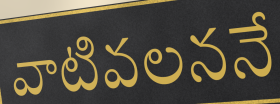
వాటివలననే